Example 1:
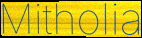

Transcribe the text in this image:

Mitholia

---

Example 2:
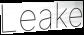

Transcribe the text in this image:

Leake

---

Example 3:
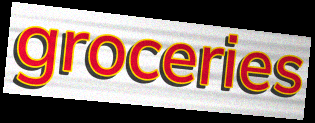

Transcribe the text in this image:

groceries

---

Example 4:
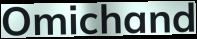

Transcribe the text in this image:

Omichand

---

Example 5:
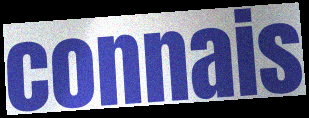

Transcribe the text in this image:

connais